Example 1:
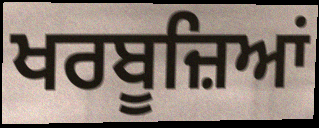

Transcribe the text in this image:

ਖਰਬੂਜ਼ਿਆਂ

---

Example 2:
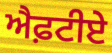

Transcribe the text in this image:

ਐਫ਼ਟੀਏ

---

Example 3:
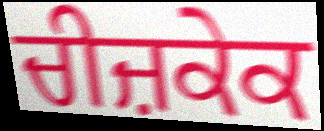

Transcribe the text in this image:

ਚੀਜ਼ਕੇਕ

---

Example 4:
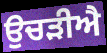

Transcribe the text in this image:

ਉਚੜੀਐ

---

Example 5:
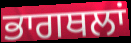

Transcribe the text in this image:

ਭਾਗਥਲਾਂ